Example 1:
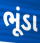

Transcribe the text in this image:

ભૂંડા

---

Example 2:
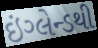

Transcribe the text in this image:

ઇંગ્લેન્ડથી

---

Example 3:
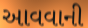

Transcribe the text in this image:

આવવાની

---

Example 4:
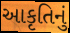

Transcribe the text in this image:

આકૃતિનું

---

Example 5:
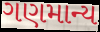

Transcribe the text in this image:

ગણમાન્ય